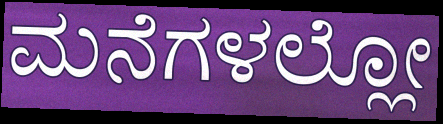
ಮನೆಗಳಲ್ಲೋ